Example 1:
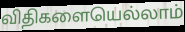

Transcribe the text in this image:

விதிகளையெல்லாம்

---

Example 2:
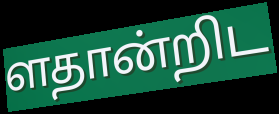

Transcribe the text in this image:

ளதான்றிட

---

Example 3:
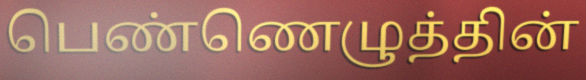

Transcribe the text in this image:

பெண்ணெழுத்தின்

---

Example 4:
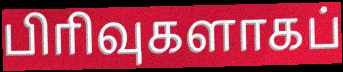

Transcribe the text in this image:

பிரிவுகளாகப்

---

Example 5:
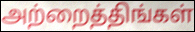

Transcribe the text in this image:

அற்றைத்திங்கள்